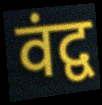
वंद्व